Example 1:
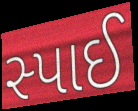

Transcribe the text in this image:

સ્પાઈ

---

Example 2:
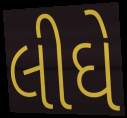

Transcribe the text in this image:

લીઘે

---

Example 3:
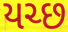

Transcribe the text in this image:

યચ્છ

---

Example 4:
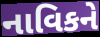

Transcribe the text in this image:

નાવિકને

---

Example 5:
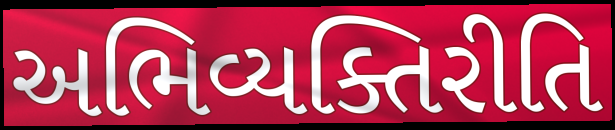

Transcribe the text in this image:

અભિવ્યક્તિરીતિ